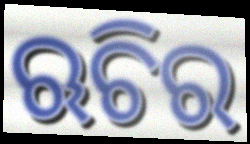
ଋଚିର